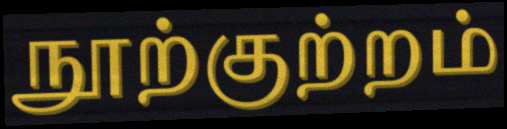
நூற்குற்றம்